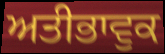
ਅਤੀਭਾਵੁਕ